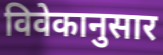
विवेकानुसार